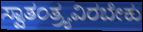
ಸ್ವಾತಂತ್ರ್ಯವಿರಬೇಕು